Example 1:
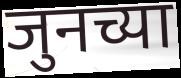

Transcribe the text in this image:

जुनच्या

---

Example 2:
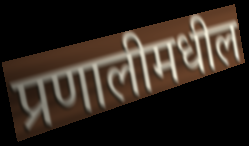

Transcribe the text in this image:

प्रणालीमधील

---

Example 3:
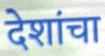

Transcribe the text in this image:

देशांचा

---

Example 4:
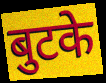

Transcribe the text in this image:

बुटके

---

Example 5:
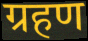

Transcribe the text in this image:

ग्रहण